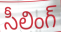
సీలింగ్